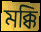
মক্কি